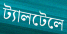
ট্যালটেলে